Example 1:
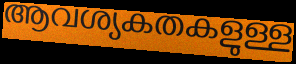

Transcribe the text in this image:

ആവശ്യകതകളുള്ള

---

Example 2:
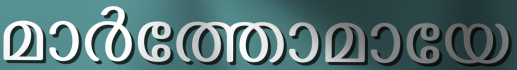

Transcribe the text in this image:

മാർത്തോമായേ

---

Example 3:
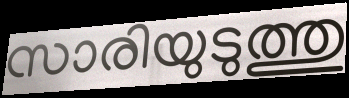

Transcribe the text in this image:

സാരിയുടുത്തു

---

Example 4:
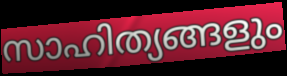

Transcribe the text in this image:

സാഹിത്യങ്ങളും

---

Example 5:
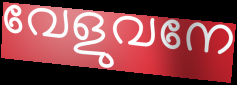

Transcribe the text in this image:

വേളുവനേ